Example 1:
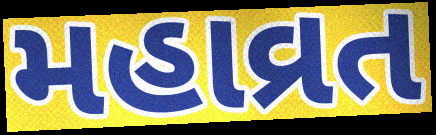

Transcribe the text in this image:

મહાવ્રત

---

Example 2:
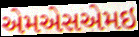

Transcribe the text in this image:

એમએસએમઇ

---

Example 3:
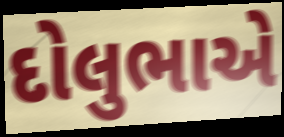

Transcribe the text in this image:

દોલુભાએ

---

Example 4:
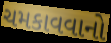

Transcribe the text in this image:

ચમકાવવાનો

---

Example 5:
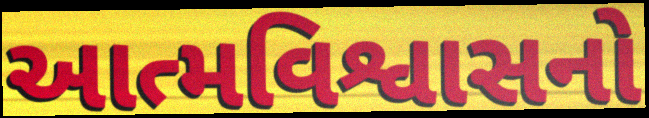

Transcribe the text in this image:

આત્મવિશ્વાસનો